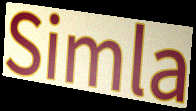
Simla